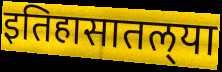
इतिहासातल्या